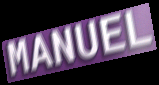
MANUEL